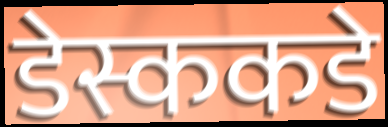
डेस्ककडे